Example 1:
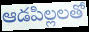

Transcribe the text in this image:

ఆడపిల్లలతో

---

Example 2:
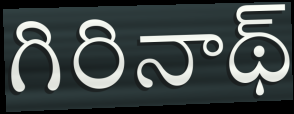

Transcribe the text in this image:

గిరినాథ్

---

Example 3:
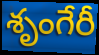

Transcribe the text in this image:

శృంగేరీ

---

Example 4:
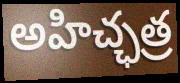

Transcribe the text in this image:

అహిచ్ఛత్ర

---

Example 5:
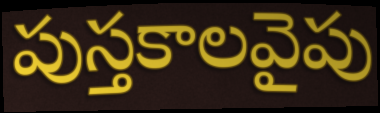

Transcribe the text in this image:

పుస్తకాలవైపు